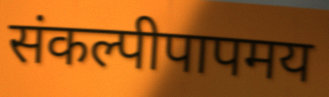
संकल्पीपापमय